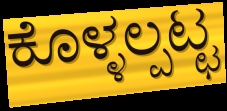
ಕೊಳ್ಳಲ್ಪಟ್ಟ